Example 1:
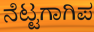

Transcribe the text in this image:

ನೆಟ್ಟಗಾಗಿಪ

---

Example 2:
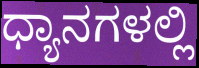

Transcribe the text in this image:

ಧ್ಯಾನಗಳಲ್ಲಿ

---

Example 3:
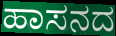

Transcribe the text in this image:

ಹಾಸನದ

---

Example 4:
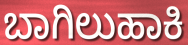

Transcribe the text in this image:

ಬಾಗಿಲುಹಾಕಿ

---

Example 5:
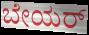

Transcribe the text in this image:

ಬೇಯರ್